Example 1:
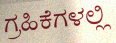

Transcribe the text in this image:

ಗ್ರಹಿಕೆಗಳಲ್ಲಿ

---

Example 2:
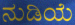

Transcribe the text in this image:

ನುಡಿಯೆ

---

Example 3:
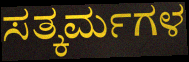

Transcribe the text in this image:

ಸತ್ಕರ್ಮಗಳ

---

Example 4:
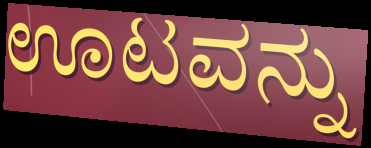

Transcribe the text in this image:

ಊಟವನ್ನು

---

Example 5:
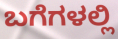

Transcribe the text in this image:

ಬಗೆಗಳಲ್ಲಿ